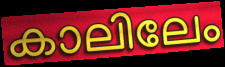
കാലിലേം